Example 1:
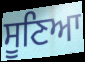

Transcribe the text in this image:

ਸੂਣਿਆ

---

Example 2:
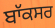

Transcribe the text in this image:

ਬਾੱਕਸਰ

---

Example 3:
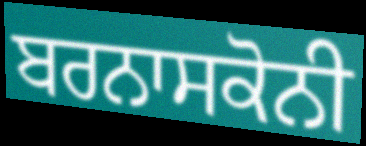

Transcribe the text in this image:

ਬਰਨਾਸਕੋਨੀ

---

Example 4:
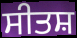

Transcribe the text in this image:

ਸੀਤਸ਼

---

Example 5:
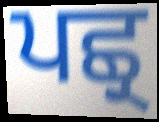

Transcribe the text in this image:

ਪਛ੍ਰ